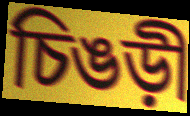
চিঙড়ী